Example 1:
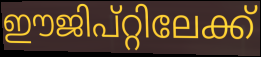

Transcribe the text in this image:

ഈജിപ്റ്റിലേക്ക്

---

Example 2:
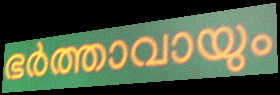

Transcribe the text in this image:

ഭർത്താവായും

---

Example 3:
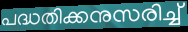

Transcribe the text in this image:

പദ്ധതിക്കനുസരിച്ച്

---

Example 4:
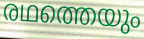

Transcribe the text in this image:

രഥത്തെയും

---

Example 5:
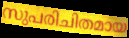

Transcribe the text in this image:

സുപരിചിതമായ